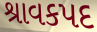
શ્રાવકપદ